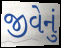
જીવેનું